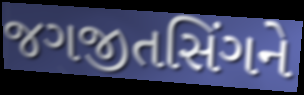
જગજીતસિંગને